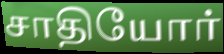
சாதியோர்